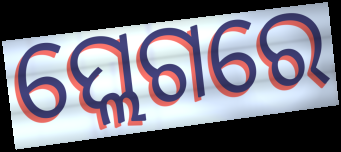
ପ୍ଲେଗରେ